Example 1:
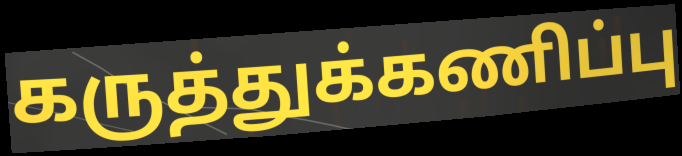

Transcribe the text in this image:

கருத்துக்கணிப்பு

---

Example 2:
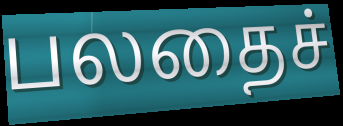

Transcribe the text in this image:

பலதைச்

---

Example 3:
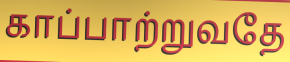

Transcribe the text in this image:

காப்பாற்றுவதே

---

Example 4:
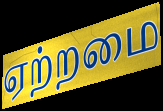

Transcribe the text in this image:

ஏற்றமை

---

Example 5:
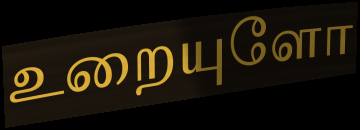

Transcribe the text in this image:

உறையுளோ